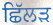
ਛਿੱਲੜ